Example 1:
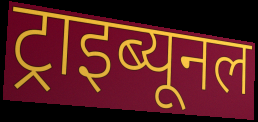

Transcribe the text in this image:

ट्राइब्यूनल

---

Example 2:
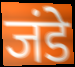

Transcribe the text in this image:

जंडे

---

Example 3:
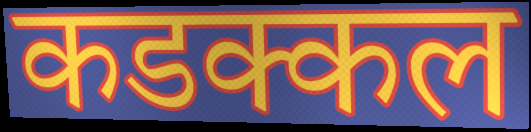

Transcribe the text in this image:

कडक्कल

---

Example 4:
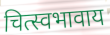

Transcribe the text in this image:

चित्स्वभावाय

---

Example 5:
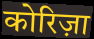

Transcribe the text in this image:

कोरिज़ा